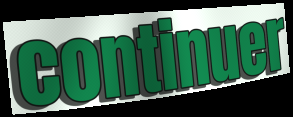
continuer